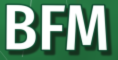
BFM